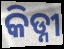
କିଡ୍ନୀ